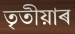
তৃতীয়াৰ